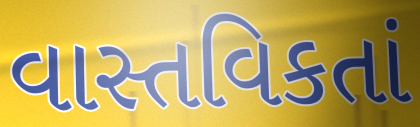
વાસ્તવિકતાં